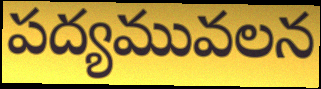
పద్యమువలన